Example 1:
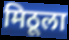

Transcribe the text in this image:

मिठूला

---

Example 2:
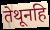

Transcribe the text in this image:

तेथूनहि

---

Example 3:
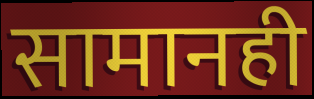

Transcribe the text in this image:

सामानही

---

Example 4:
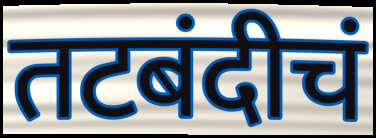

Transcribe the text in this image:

तटबंदीचं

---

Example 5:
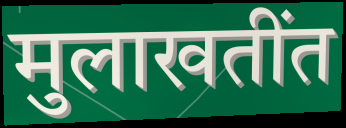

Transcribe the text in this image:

मुलाखतींत